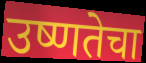
उष्णतेचा